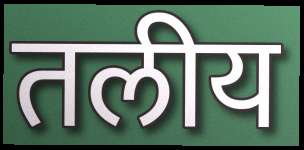
तलीय